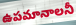
ఉపమానాలనీ